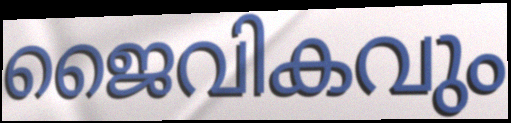
ജൈവികവും